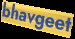
bhavgeet